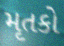
મૃતકો